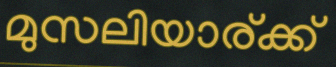
മുസലിയാര്ക്ക്